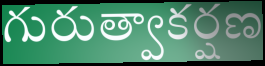
గురుత్వాకర్షణ